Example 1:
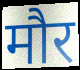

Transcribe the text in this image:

मौर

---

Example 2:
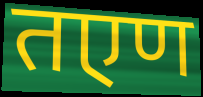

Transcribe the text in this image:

तएण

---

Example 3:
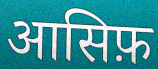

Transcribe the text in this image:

आसिफ़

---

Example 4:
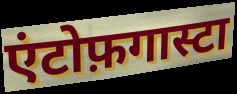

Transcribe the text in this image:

एंटोफ़गास्टा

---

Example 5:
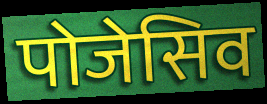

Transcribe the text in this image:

पोजेसिव